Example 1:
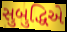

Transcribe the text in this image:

સુબુદ્ધિએ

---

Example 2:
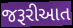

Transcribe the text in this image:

જરૂરીઆત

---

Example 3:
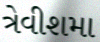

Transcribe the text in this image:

ત્રેવીશમા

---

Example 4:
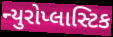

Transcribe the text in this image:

ન્યુરોપ્લાસ્ટિક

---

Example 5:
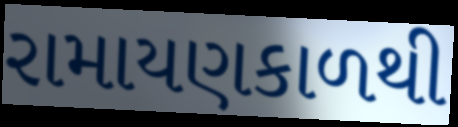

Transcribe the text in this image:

રામાયણકાળથી